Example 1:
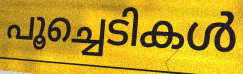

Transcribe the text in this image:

പൂച്ചെടികൾ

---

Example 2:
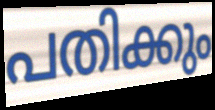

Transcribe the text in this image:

പതിക്കും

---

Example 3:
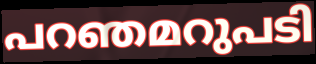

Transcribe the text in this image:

പറഞമറുപടി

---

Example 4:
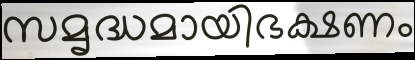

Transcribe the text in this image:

സമൃദ്ധമായിഭക്ഷണം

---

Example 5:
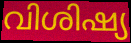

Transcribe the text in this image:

വിശിഷ്യ